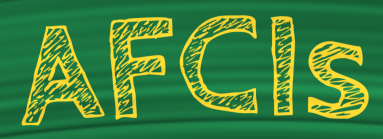
AFCIs